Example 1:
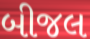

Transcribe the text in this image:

બીજલ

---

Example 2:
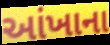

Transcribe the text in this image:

આંખાના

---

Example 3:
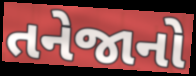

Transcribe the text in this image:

તનેજાનો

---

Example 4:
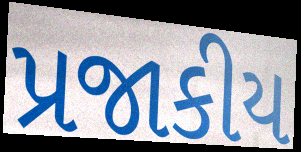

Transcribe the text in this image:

પ્રજાકીય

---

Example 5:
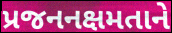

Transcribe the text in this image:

પ્રજનનક્ષમતાને